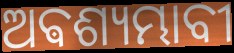
ଅଵଶ୍ୟମ୍ଭାବୀ